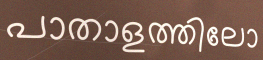
പാതാളത്തിലോ